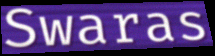
Swaras